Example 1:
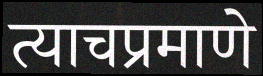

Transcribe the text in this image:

त्याचप्रमाणे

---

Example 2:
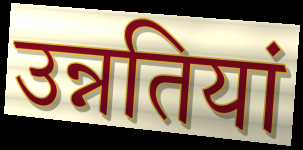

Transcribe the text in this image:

उन्नतियां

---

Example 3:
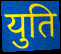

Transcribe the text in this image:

युति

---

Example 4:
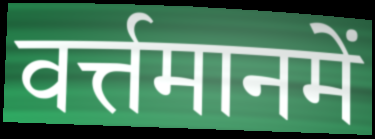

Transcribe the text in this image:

वर्त्तमानमें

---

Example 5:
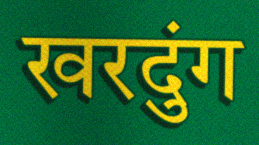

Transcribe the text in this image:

खरदुंग